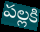
పల్లకి